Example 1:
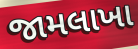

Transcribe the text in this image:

જામલાખા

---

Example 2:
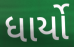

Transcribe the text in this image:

ધાર્યો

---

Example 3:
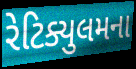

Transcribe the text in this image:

રેટિક્યુલમના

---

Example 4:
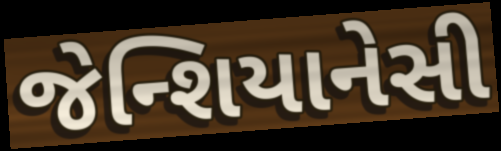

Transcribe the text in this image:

જેન્શિયાનેસી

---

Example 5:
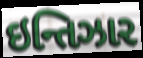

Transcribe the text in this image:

ઇન્તિઝાર